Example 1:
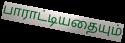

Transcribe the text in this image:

பாராட்டியதையும்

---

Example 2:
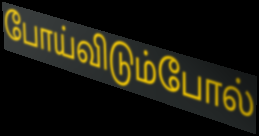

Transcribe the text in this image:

போய்விடும்போல்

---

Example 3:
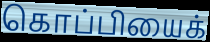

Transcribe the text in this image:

கொப்பியைக்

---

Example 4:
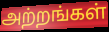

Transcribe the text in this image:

அற்றங்கள்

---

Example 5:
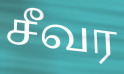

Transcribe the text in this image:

சீவர